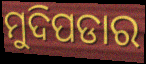
ମୁଦିପଡାର